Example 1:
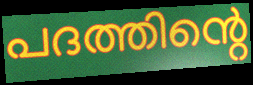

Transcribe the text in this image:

പദത്തിന്റെ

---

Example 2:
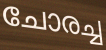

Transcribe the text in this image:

ചോരച്ച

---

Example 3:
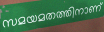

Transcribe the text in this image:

സമയമതത്തിനാണ്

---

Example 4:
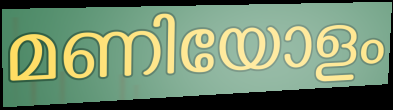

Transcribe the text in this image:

മണിയോളം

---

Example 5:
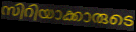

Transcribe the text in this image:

സിറിയാക്കാരുടെ